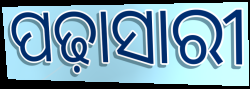
ପଢ଼ାସାରୀ